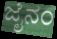
ಜೈನಂ